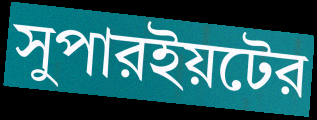
সুপারইয়টের